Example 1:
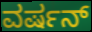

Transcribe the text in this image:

ವರ್ಷನ್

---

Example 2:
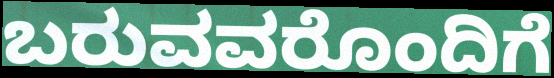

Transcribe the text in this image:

ಬರುವವರೊಂದಿಗೆ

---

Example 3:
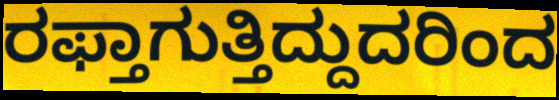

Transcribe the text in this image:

ರಫ್ತಾಗುತ್ತಿದ್ದುದರಿಂದ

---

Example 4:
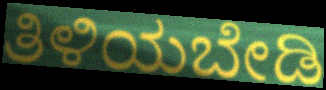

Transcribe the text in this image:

ತಿಳಿಯಬೇಡಿ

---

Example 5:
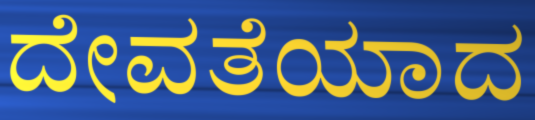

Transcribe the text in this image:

ದೇವತೆಯಾದ